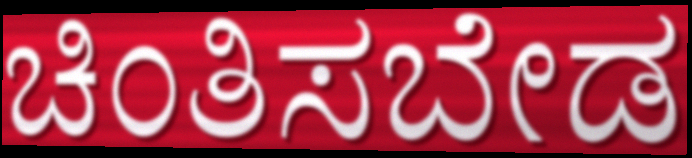
ಚಿಂತಿಸಬೇಡ